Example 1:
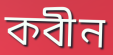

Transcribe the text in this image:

কবীন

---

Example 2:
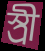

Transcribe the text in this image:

স্ত্ৰী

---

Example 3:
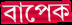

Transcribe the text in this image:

বাপেক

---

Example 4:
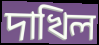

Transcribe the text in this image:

দাখিল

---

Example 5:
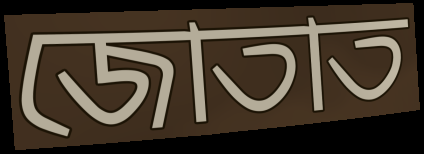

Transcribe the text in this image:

জোতাত